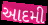
આદમી